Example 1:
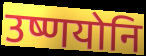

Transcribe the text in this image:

उष्णयोनि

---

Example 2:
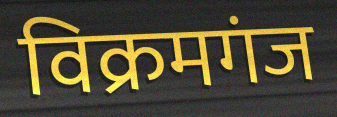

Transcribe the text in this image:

विक्रमगंज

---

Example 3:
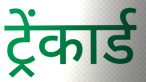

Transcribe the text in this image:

ट्रेंकार्ड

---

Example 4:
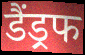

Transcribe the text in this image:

डैंड्रफ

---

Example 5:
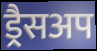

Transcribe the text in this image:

ड्रैसअप